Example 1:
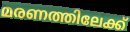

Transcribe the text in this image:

മരണത്തിലേക്ക്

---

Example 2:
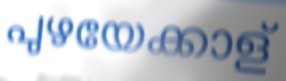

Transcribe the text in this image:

പുഴയേക്കാള്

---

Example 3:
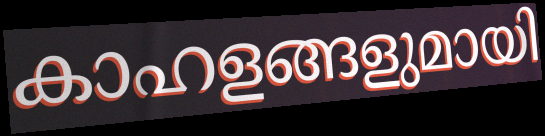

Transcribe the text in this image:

കാഹളങ്ങളുമായി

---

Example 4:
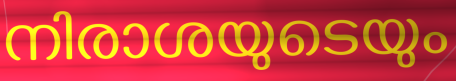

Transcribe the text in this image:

നിരാശയുടെയും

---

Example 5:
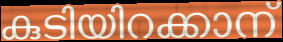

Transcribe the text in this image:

കുടിയിറക്കാന്